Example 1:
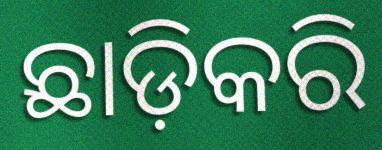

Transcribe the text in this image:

ଛାଡ଼ିକରି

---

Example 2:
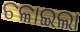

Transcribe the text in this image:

ଚଳାଇଲା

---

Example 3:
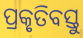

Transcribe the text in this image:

ପ୍ରକୃତିବସ୍ତୁ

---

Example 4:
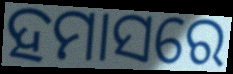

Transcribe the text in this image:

ହମାସରେ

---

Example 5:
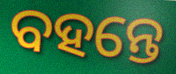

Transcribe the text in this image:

ବହନ୍ତେ